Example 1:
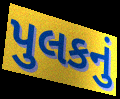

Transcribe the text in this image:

પુલકનું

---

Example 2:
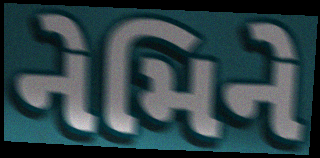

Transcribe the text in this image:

નેમિને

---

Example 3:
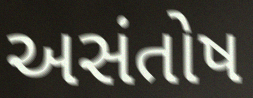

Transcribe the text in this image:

અસંતોષ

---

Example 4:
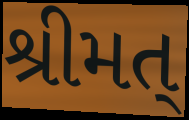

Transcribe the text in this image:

શ્રીમત્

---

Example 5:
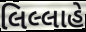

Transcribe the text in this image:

લિલ્લાહે